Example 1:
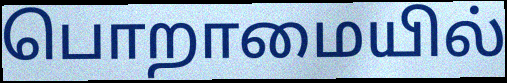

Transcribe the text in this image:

பொறாமையில்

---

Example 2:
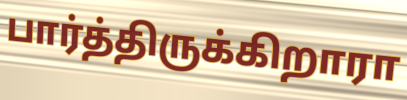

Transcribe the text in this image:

பார்த்திருக்கிறாரா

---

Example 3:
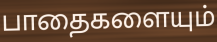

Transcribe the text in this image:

பாதைகளையும்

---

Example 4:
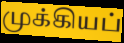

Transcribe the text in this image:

முக்கியப்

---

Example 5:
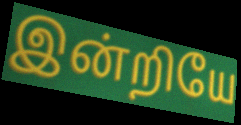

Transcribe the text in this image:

இன்றியே